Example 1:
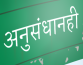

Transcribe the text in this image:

अनुसंधानही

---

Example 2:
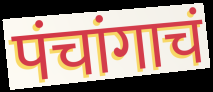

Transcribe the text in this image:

पंचांगाचं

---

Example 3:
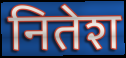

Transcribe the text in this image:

नितेश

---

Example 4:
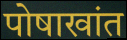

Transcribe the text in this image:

पोषाखांत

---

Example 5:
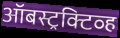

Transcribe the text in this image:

ऑबस्ट्रक्टिव्ह